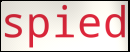
spied